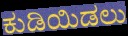
ಕುಡಿಯಿಡಲು